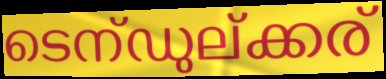
ടെന്ഡുല്ക്കര്